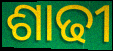
ଶାଢୀ